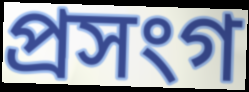
প্ৰসংগ